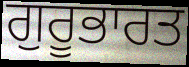
ਗੁਰੂਭਾਰਤ